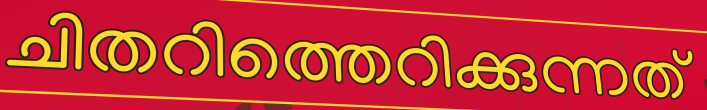
ചിതറിത്തെറിക്കുന്നത്